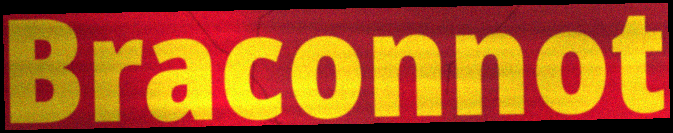
Braconnot